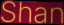
Shan